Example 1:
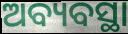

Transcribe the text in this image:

ଅବ୍ୟବସ୍ଥା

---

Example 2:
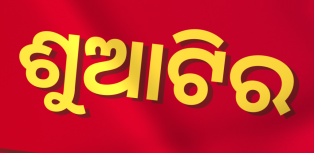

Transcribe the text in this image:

ଶୁଆଟିର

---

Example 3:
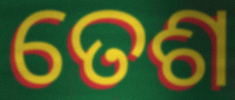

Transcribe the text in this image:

ତେଶ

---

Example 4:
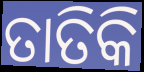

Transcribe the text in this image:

ତାତିକି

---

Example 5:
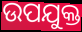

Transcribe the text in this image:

ଉପଯୁକ୍ତ